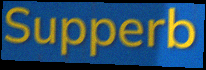
Supperb